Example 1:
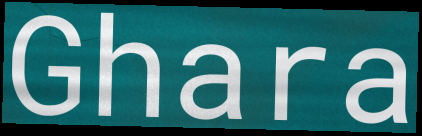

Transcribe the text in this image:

Ghara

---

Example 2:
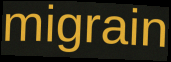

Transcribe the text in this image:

migrain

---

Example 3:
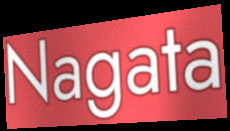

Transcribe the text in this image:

Nagata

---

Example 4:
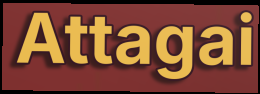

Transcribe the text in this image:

Attagai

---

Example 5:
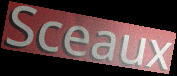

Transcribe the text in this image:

Sceaux